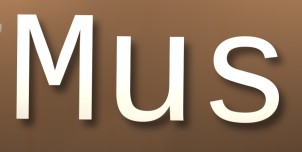
Mus